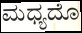
ಮಧ್ಯದೊ